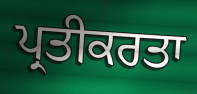
ਪ੍ਰਤੀਕਰਤਾ